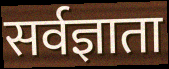
सर्वज्ञाता